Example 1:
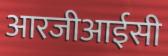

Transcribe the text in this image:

आरजीआईसी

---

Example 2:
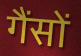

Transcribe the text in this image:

गैंसों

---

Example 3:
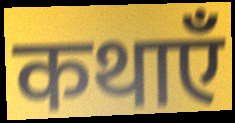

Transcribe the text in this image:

कथाएँ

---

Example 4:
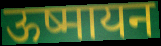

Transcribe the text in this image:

ऊष्मायन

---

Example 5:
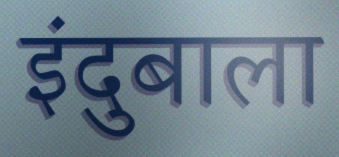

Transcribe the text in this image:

इंदुबाला